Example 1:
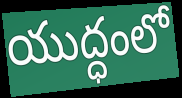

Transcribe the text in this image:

యుద్ధంలో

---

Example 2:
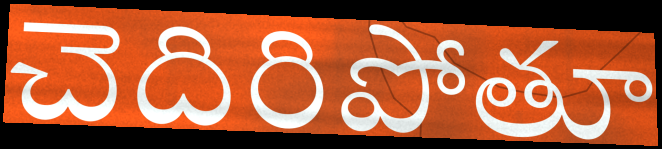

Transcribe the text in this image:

చెదిరిపోతూ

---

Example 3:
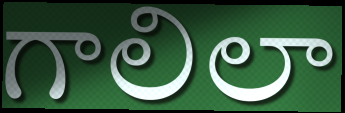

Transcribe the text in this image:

గాలిలా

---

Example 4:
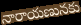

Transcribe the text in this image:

నారాయణునకు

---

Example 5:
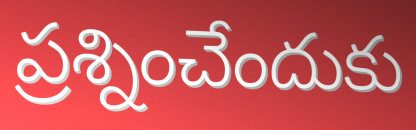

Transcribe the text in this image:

ప్రశ్నించేందుకు